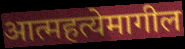
आत्महत्येमागील